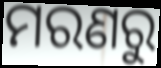
ମରଣରୁ